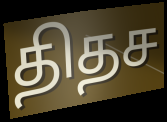
திதச